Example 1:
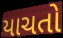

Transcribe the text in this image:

યાચતો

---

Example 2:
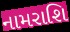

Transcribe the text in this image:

નામરાશિ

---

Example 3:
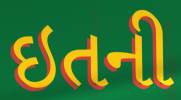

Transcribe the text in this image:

ઇતની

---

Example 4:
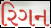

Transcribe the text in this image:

રિગન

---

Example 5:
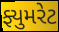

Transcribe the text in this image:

ફ્યુમરેટ